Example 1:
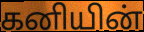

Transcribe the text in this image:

கனியின்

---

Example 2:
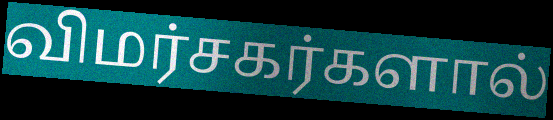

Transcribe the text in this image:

விமர்சகர்களால்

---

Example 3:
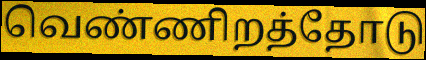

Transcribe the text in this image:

வெண்ணிறத்தோடு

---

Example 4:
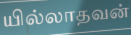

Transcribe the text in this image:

யில்லாதவன்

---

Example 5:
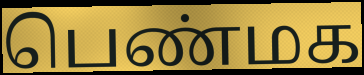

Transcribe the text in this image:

பெண்மக